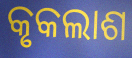
କୃକଲାଶ